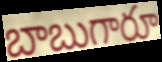
బాబుగారూ